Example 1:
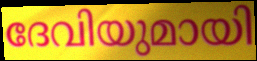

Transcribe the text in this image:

ദേവിയുമായി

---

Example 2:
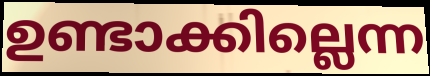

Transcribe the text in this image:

ഉണ്ടാക്കില്ലെന്ന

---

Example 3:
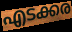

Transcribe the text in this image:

എടക്കര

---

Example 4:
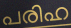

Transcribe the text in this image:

പരിഹ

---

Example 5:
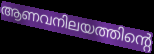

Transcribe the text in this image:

ആണവനിലയത്തിന്റെ